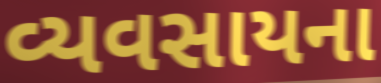
વ્યવસાયના